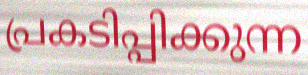
പ്രകടിപ്പിക്കുന്ന